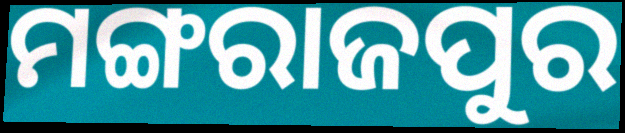
ମଙ୍ଗରାଜପୁର